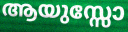
ആയുസ്സോ